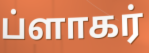
ப்ளாகர்